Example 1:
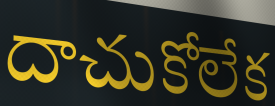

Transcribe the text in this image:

దాచుకోలేక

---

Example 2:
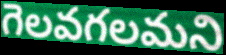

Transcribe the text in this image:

గెలవగలమని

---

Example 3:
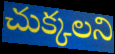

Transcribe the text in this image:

చుక్కలని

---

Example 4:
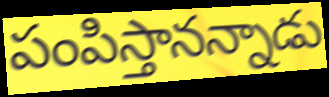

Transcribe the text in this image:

పంపిస్తానన్నాడు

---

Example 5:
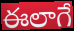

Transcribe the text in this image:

ఈలాగే